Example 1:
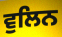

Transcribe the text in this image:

ਵੁਲਿਨ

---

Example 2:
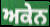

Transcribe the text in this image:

ਅਕੇਨ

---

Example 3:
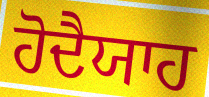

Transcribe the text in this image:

ਹੋਦੈਯਾਹ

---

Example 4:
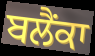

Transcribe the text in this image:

ਬਲੈਂਕਾ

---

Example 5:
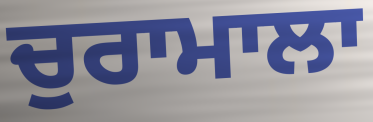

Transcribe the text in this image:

ਚੁਰਾਮਾਲਾ